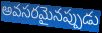
అవసరమైనప్పుడు